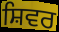
ਸ਼ਿਵਰ